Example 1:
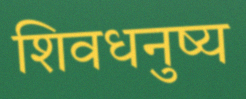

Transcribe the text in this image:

शिवधनुष्य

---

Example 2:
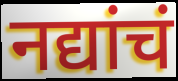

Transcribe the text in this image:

नद्यांचं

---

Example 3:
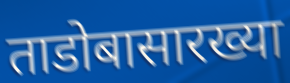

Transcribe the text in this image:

ताडोबासारख्या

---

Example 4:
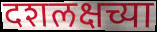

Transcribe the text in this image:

दशलक्षच्या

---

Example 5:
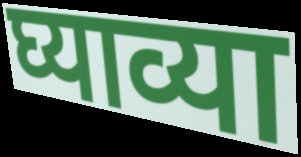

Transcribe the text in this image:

घ्याव्या